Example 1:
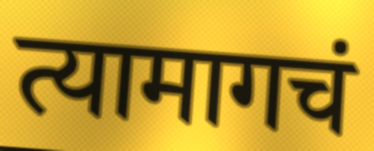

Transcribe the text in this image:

त्यामागचं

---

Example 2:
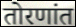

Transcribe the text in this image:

तोरणांत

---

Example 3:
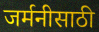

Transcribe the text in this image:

जर्मनीसाठी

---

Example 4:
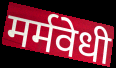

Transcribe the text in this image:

मर्मवेधी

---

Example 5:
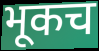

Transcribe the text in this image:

भूकच